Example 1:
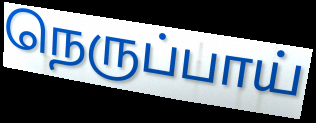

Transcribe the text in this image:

நெருப்பாய்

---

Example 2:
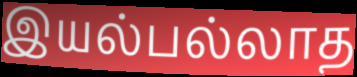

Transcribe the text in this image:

இயல்பல்லாத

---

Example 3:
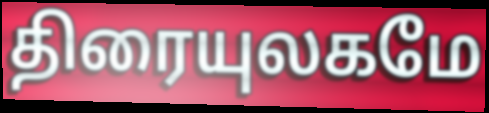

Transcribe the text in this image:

திரையுலகமே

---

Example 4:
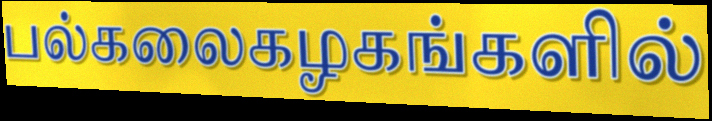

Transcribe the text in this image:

பல்கலைகழகங்களில்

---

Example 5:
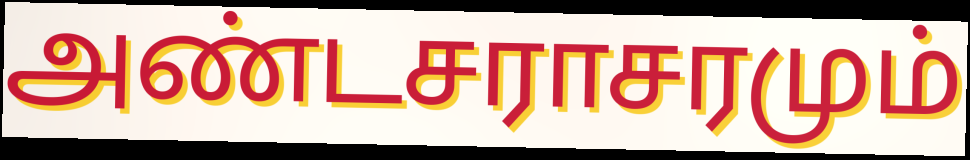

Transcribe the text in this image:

அண்டசராசரமும்